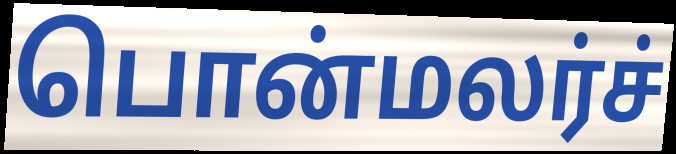
பொன்மலர்ச்